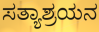
ಸತ್ಯಾಶ್ರಯನ